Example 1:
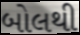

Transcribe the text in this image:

બોલથી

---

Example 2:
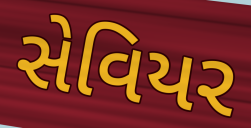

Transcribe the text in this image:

સેવિયર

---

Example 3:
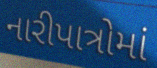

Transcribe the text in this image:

નારીપાત્રોમાં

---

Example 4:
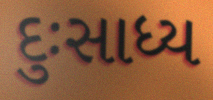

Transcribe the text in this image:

દુઃસાધ્ય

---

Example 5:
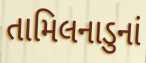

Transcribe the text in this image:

તામિલનાડુનાં